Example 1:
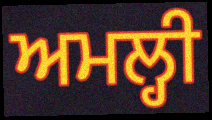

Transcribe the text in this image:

ਅਮਲ੍ਹੀ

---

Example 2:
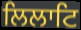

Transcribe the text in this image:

ਲਿਲਾਟਿ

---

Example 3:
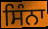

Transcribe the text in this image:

ਸਿੰਨਾ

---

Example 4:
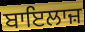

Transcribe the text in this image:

ਬਾਇਲਾਜ਼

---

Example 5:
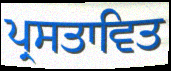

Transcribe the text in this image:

ਪ੍ਰਸਤਾਵਿਤ